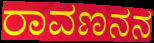
ರಾವಣನನ